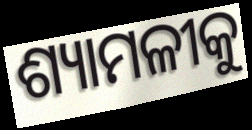
ଶ୍ୟାମଳୀକୁ